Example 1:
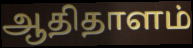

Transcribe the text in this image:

ஆதிதாளம்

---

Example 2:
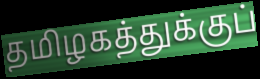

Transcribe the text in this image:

தமிழகத்துக்குப்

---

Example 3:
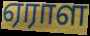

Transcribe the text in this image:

ஏராள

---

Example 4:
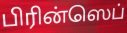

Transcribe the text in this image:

பிரின்ஸெப்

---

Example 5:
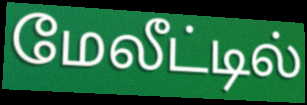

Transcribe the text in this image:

மேலீட்டில்